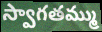
స్వాగతమ్ము